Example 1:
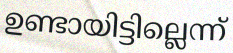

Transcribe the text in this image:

ഉണ്ടായിട്ടില്ലെന്ന്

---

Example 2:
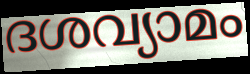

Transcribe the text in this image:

ദശവ്യാമം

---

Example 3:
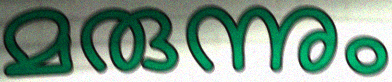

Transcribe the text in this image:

മരുന്നും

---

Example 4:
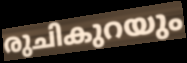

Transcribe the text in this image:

രുചികുറയും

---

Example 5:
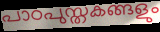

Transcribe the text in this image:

പാഠപുസ്തകങ്ങളും